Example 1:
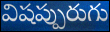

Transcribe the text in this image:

విషప్పురుగు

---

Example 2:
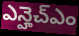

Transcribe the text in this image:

ఎన్హెచ్ఎం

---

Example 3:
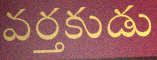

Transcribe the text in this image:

వర్తకుడు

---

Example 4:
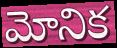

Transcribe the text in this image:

మోనిక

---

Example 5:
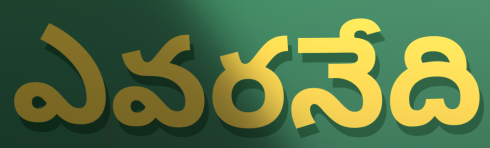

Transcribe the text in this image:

ఎవరనేది